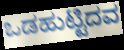
ಒಡಹುಟ್ಟಿದವ